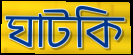
ঘাটকি